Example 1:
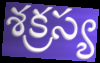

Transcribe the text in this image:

శక్రస్య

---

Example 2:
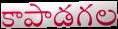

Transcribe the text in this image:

కాపాడగల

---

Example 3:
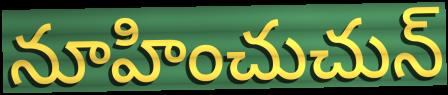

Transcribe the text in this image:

నూహించుచున్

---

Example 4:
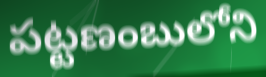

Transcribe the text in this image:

పట్టణంబులోని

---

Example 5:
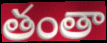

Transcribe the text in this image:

తంతా